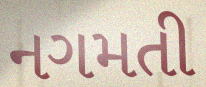
નગમતી